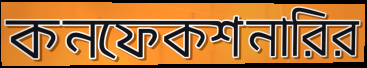
কনফেকশনারির